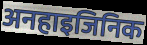
अनहाइजिनिक